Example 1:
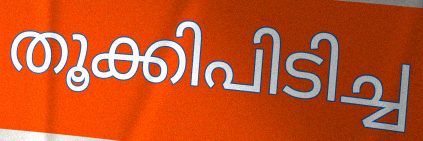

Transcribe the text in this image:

തൂക്കിപിടിച്ച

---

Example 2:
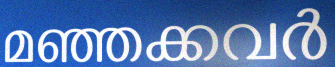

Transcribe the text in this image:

മഞ്ഞക്കവർ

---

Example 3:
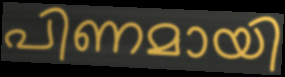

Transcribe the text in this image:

പിണമായി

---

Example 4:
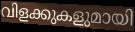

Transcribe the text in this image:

വിളക്കുകളുമായി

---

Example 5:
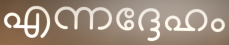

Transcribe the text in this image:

എന്നദ്ദേഹം